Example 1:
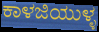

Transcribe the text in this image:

ಕಾಳಜಿಯುಳ್ಳ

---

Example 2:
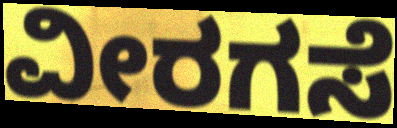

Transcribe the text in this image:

ವೀರಗಸೆ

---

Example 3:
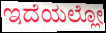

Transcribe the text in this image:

ಇದೆಯಲ್ಲೋ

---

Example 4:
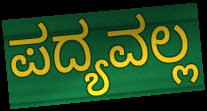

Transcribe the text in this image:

ಪದ್ಯವಲ್ಲ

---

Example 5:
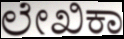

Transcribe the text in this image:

ಲೇಖಿಕಾ